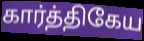
கார்த்திகேய